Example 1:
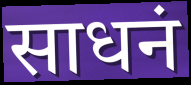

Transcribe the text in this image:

साधनं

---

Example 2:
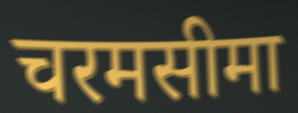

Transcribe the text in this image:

चरमसीमा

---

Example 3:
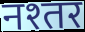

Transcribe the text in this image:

नश्तर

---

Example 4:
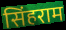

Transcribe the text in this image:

सिंहराम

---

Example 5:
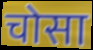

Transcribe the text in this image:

चोसा